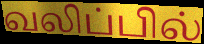
வலிப்பில்